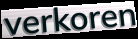
verkoren